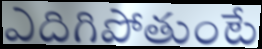
ఎదిగిపోతుంటే